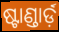
ଷ୍ଟାଣ୍ଡାର୍ଡ଼